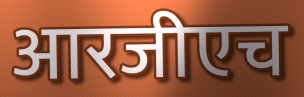
आरजीएच